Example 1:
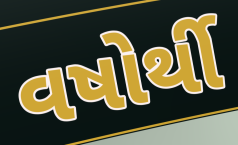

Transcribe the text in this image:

વષોર્થી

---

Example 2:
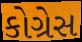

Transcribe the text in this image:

કોગ્રેસ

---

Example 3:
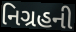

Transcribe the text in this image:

નિગ્રહની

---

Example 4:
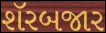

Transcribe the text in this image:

શૅરબજાર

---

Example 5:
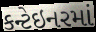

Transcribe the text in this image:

કન્ટેઇનરમાં